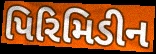
પિરિમિડીન